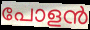
പോളൻ